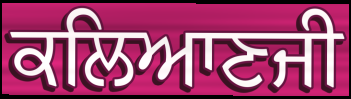
ਕਲਿਆਣਜੀ